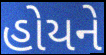
હોયને